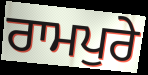
ਰਾਮਪੁਰੇ